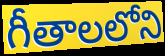
గీతాలలోని